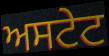
ਅਸਟੇਟ